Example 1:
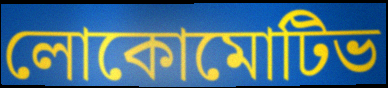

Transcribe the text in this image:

লোকোমোটিভ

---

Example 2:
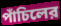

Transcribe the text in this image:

পাঁচিলের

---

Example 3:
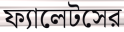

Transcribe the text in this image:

ফ্যালেটসের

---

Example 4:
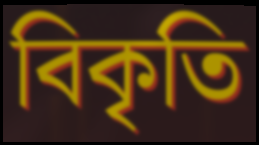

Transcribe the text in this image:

বিকৃতি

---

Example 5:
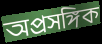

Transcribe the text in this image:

অপ্রসঙ্গিক